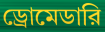
ড্রোমেডারি